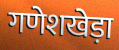
गणेशखेड़ा